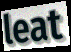
leat